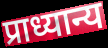
प्राध्यान्य